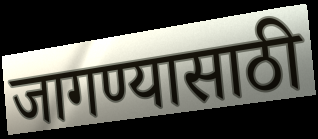
जागण्यासाठी